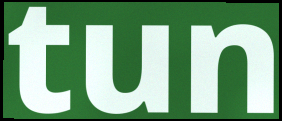
tun